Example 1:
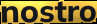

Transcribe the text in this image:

nostro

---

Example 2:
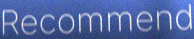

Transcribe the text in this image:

Recommend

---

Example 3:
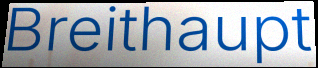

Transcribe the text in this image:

Breithaupt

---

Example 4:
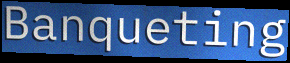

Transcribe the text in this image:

Banqueting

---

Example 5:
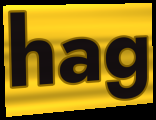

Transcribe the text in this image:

hag